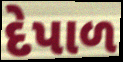
દેપાળ